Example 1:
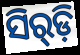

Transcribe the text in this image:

ସିର୍‌ଡ଼ି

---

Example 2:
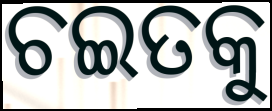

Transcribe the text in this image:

ଚଇତକୁ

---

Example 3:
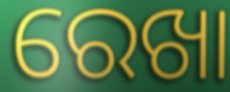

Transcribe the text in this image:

ରେଖା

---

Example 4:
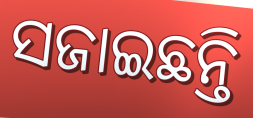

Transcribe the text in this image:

ସଜାଇଛନ୍ତି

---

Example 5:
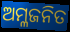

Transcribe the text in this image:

ଅମ୍ଳଜନିତ